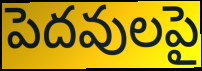
పెదవులపై